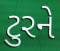
ટુરને